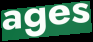
ages